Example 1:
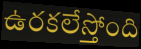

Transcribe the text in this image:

ఉరకలేస్తోంది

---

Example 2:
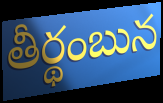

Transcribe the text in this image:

తీర్థంబున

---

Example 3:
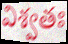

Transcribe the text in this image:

విశ్వతః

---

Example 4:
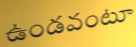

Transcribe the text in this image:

ఉండవంటూ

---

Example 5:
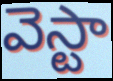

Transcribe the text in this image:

వెస్టా